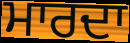
ਮਾਰਦਾ